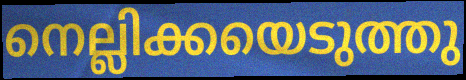
നെല്ലിക്കയെടുത്തു